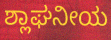
ಶ್ಲಾಘನೀಯ